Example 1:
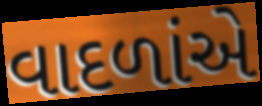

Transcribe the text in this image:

વાદળાંએ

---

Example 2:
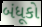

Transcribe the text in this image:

બંધૂકો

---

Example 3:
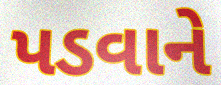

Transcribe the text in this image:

પડવાને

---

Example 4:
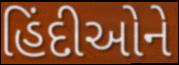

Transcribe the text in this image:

હિંદીઓને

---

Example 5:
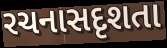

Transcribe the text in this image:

રચનાસદૃશતા